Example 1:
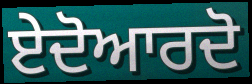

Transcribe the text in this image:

ਏਦੋਆਰਦੋ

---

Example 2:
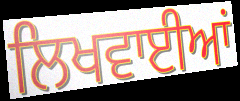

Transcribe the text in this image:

ਲਿਖਵਾਈਆਂ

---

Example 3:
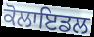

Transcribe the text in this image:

ਕੋਲਾਇਡਲ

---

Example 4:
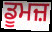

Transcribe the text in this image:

ਡੂਮਜ਼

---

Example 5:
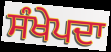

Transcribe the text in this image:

ਸੰਖੇਪਦਾ